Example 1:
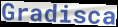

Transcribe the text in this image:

Gradisca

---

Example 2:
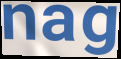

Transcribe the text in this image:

nag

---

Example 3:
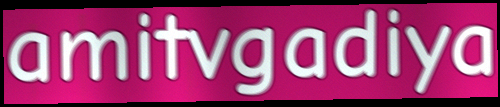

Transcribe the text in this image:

amitvgadiya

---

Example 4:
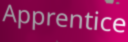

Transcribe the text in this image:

Apprentice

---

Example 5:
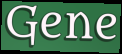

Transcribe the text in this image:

Gene